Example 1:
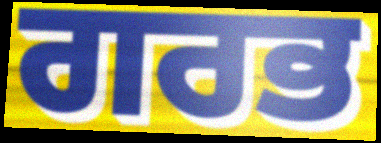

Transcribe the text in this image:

ਗਰਭ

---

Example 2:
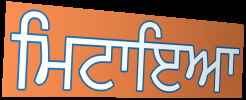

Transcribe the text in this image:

ਮਿਟਾਇਆ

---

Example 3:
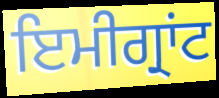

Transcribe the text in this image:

ਇਮੀਗ੍ਰਾਂਟ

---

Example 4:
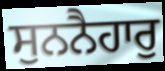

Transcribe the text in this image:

ਸੁਨਨੈਹਾਰੁ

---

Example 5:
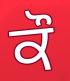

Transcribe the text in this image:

ਕੌ